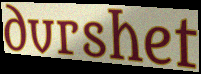
durshet